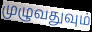
முழுவதுவும்